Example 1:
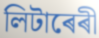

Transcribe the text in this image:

লিটাৰেৰী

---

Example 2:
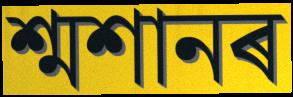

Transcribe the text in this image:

শ্মশানৰ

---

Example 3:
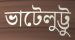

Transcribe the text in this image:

ভাটেলুট্টু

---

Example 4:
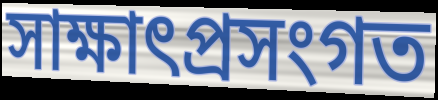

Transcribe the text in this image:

সাক্ষাৎপ্ৰসংগত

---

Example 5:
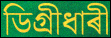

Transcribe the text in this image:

ডিগ্ৰীধাৰী